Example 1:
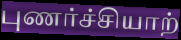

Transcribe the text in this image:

புணர்ச்சியாற்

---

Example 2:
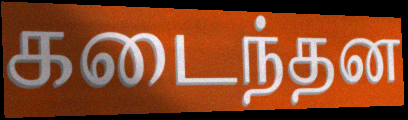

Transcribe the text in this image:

கடைந்தன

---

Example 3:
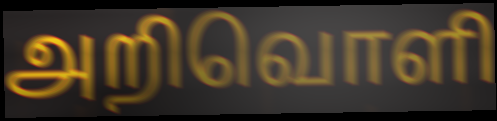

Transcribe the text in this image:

அறிவொளி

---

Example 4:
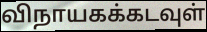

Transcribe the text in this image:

விநாயகக்கடவுள்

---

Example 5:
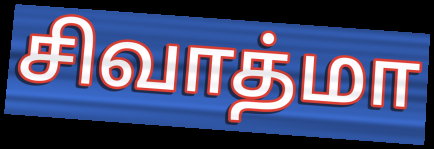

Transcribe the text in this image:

சிவாத்மா